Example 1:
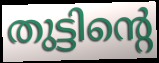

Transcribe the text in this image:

തുട്ടിന്റെ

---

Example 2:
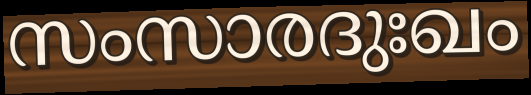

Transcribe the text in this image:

സംസാരദുഃഖം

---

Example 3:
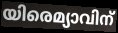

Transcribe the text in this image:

യിരെമ്യാവിന്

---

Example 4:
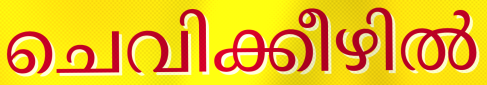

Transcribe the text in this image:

ചെവിക്കീഴിൽ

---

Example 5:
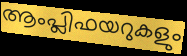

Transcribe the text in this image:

ആംപ്ലിഫയറുകളും